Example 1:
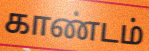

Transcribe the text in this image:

காண்டம்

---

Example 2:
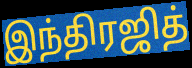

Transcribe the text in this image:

இந்திரஜித்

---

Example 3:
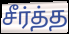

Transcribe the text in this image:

சீர்த்த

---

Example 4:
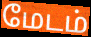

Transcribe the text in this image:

மேடம்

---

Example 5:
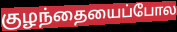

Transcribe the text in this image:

குழந்தையைப்போல